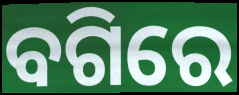
ବଗିରେ